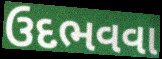
ઉદભવવા